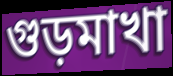
গুড়মাখা